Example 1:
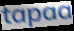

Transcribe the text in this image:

tapaa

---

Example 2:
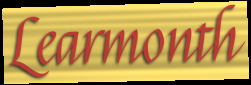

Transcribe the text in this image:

Learmonth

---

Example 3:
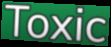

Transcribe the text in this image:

Toxic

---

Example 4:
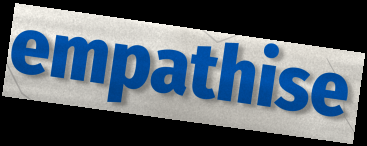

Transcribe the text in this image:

empathise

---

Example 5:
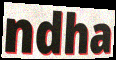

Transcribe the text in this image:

ndha